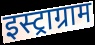
इस्ट्राग्राम